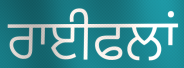
ਰਾਈਫਲਾਂ